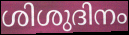
ശിശുദിനം